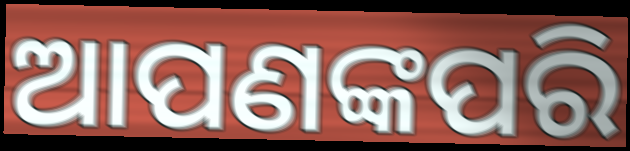
ଆପଣଙ୍କପରି